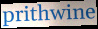
prithwine